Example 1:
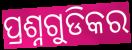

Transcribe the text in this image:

ପ୍ରଶ୍ନଗୁଡିକର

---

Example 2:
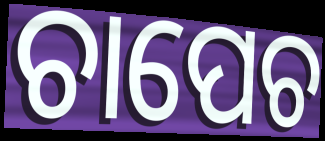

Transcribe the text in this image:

ଚାପେଚ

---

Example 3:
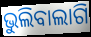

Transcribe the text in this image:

ଭୁଲିବାଲାଗି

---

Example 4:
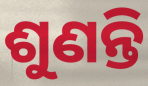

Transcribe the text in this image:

ଶୁଣନ୍ତି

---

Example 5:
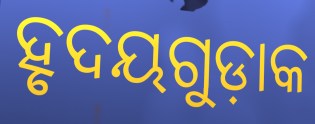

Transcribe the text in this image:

ହୃଦୟଗୁଡ଼ାକ